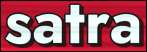
satra